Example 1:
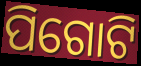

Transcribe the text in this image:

ପିଗୋଟି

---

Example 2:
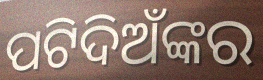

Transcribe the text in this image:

ପଟିଦିଅଁଙ୍କର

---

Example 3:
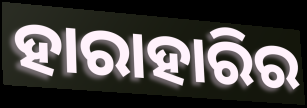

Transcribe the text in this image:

ହାରାହାରିର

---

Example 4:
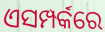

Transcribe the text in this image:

ଏସମ୍ପର୍କରେ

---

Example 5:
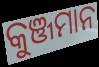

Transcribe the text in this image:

କୁଞ୍ଜମାନ